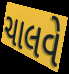
ચાલવે